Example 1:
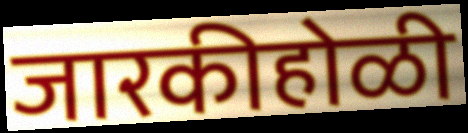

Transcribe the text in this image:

जारकीहोळी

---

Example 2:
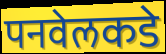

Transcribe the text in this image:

पनवेलकडे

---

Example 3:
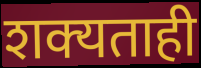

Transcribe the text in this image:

शक्‍यताही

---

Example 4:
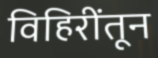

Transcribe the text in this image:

विहिरींतून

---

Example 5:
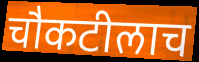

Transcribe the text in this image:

चौकटीलाच